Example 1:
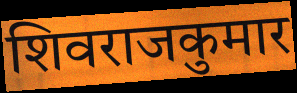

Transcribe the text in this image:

शिवराजकुमार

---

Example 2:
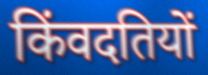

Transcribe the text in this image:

किंवदतियों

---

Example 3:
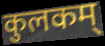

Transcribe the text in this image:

कुलकम्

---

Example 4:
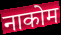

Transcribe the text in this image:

नाकोम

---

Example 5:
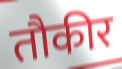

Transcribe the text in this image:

तौकीर